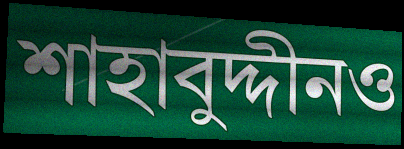
শাহাবুদ্দীনও